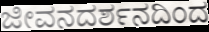
ಜೀವನದರ್ಶನದಿಂದ